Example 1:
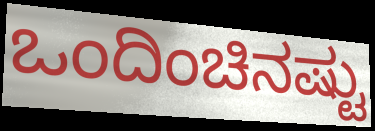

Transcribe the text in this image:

ಒಂದಿಂಚಿನಷ್ಟು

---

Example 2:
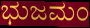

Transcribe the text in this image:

ಭುಜಮಂ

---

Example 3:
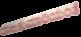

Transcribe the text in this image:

ರಾಜಕುಮಾರಿಯಂತೆ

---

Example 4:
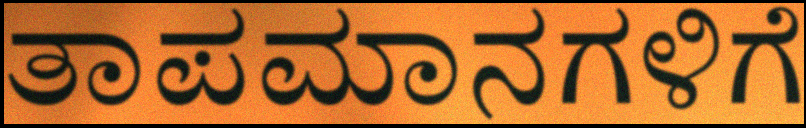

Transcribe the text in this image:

ತಾಪಮಾನಗಳಿಗೆ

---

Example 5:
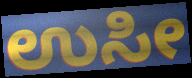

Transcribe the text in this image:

ಉಸೀ